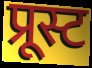
प्रूस्ट